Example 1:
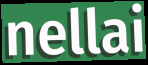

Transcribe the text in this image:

nellai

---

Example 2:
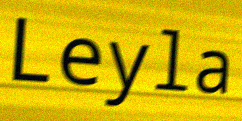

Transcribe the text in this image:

Leyla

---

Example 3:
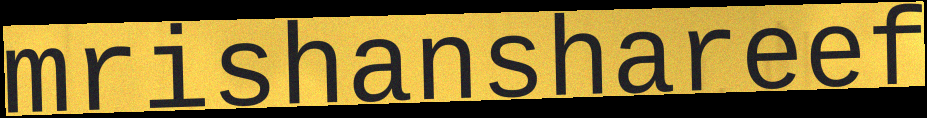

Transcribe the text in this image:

mrishanshareef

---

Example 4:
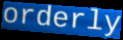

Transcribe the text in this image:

orderly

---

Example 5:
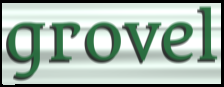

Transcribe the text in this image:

grovel